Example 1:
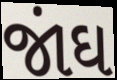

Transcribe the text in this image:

જાંઘ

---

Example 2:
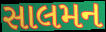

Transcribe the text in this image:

સાલમન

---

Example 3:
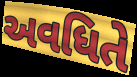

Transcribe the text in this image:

અવધિતે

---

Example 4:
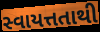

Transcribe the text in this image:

સ્વાયત્તતાથી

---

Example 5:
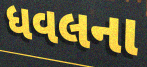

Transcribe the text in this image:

ધવલના